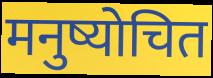
मनुष्योचित